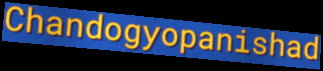
Chandogyopanishad